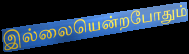
இல்லையென்றபோதும்